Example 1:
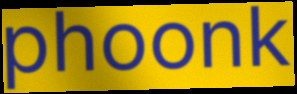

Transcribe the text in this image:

phoonk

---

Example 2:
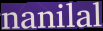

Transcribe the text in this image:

nanilal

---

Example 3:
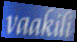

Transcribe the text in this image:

vaakili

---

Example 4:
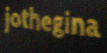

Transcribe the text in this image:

jothegina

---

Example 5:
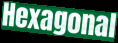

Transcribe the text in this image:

Hexagonal